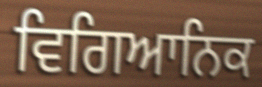
ਵਿਗਿਆਨਿਕ